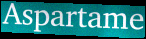
Aspartame